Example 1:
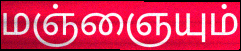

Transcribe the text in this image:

மஞ்ஞையும்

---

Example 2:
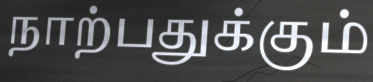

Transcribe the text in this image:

நாற்பதுக்கும்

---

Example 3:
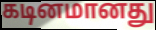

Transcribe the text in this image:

கடினமானது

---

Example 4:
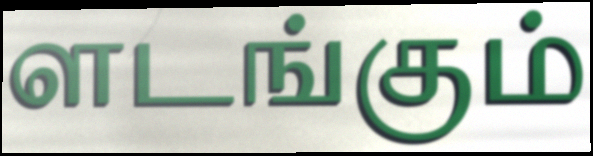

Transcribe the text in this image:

ளடங்கும்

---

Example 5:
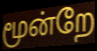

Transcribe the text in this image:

மூன்றே